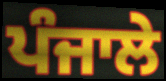
ਪੰਜਾਲੇ